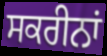
ਸਕਰੀਨਾਂ